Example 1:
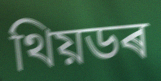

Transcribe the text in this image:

থিয়ডৰ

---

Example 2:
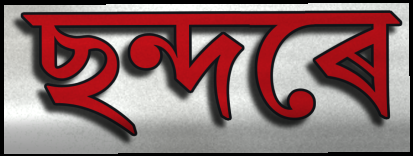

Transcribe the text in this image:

ছন্দৰে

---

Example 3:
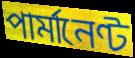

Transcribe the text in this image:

পাৰ্মানেণ্ট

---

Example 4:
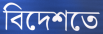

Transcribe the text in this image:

বিদেশতে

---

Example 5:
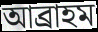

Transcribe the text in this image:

আব্ৰাহম